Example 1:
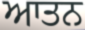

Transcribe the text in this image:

ਆਤਨ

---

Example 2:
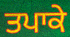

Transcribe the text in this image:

ਤਪਾਕੇ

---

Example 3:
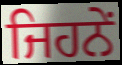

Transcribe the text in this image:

ਜਿਹਨੇਂ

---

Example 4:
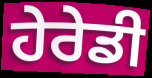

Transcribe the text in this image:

ਹੇਰੇਡੀ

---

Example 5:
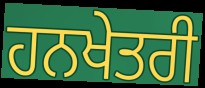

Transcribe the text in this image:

ਹਨਖੇਤਰੀ